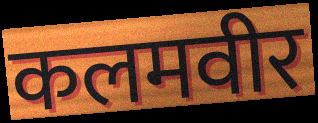
कलमवीर